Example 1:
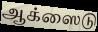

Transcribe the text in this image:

ஆக்ஸைடு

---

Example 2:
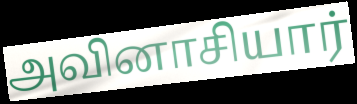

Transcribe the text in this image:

அவினாசியார்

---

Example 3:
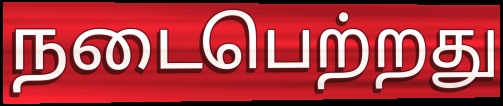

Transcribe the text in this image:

நடைபெற்றது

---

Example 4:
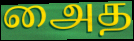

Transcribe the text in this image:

அைத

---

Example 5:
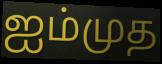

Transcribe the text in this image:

ஐம்முத